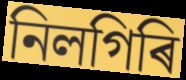
নিলগিৰি